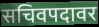
सचिवपदावर